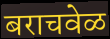
बराचवेळ